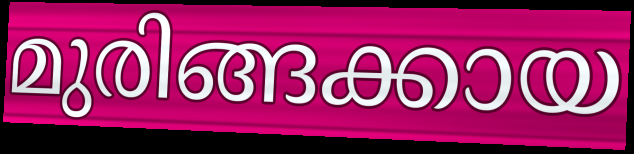
മുരിങ്ങക്കായ